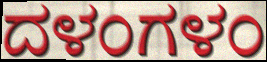
ದಳಂಗಳಂ